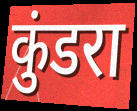
कुंडरा